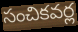
సంచికవర్ల